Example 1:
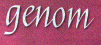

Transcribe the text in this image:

genom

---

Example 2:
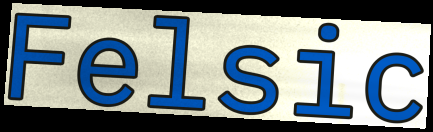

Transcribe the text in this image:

Felsic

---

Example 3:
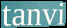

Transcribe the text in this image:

tanvi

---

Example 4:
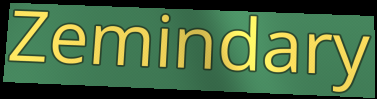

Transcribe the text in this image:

Zemindary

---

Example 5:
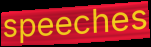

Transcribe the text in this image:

speeches